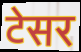
टेसर